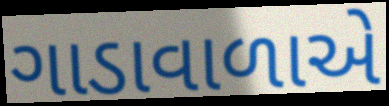
ગાડાવાળાએ